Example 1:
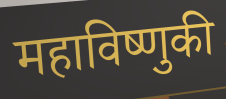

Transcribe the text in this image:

महाविष्णुकी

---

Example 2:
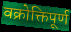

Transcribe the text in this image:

वक्रोक्तिपूर्ण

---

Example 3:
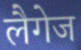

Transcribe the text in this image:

लैगेज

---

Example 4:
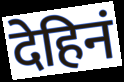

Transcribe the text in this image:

देहिनं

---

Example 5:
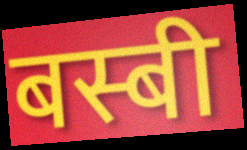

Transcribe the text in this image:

बस्बी